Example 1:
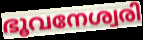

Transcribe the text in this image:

ഭൂവനേശ്വരി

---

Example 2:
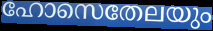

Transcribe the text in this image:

ഹോസെതേലയും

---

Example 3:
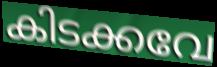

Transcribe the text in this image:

കിടക്കവേ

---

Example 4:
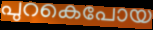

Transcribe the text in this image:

പുറകെപോയ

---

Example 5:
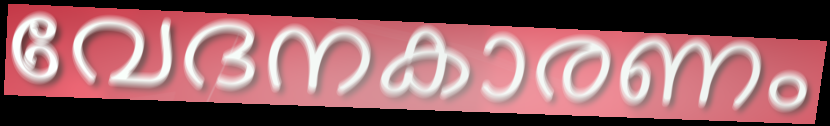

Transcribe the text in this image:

വേദനകാരണം